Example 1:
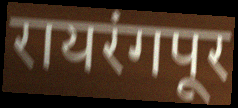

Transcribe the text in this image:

रायरंगपूर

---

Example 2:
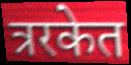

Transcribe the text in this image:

त्ररकेत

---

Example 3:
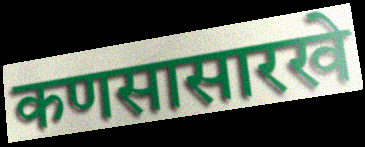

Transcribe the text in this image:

कणसासारखे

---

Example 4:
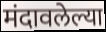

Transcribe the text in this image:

मंदावलेल्या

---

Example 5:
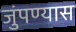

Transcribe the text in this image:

जुंपण्यास